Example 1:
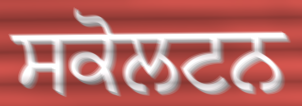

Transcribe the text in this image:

ਸਕੋਲਟਨ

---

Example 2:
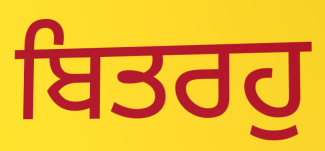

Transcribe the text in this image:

ਬਿਤਰਹੁ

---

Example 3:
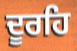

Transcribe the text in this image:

ਦੂਰਹਿ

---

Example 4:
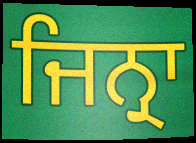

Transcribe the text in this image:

ਜਿਨ੍ਰਾ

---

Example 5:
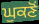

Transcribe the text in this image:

ਘੁਕਣੋਂ